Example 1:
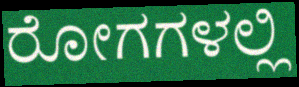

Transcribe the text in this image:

ರೋಗಗಳಲ್ಲಿ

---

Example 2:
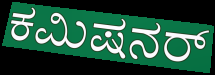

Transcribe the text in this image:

ಕಮಿಷನರ್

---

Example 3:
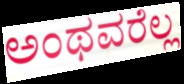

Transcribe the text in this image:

ಅಂಥವರೆಲ್ಲ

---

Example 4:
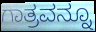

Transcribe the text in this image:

ಗಾತ್ರವನ್ನೂ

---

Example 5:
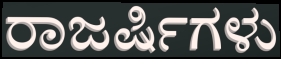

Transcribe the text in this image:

ರಾಜರ್ಷಿಗಳು